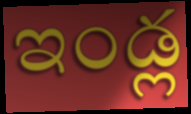
ఇండ్ల